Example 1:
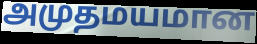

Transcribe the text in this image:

அமுதமயமான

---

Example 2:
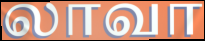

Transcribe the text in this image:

லாவா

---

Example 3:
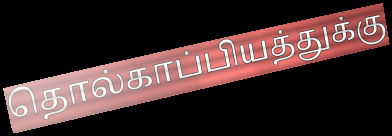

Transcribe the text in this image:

தொல்காப்பியத்துக்கு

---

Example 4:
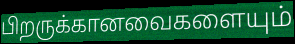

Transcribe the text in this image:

பிறருக்கானவைகளையும்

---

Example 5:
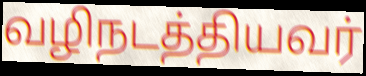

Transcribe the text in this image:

வழிநடத்தியவர்